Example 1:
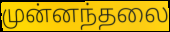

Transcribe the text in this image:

முன்னந்தலை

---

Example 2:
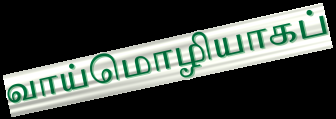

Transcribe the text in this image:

வாய்மொழியாகப்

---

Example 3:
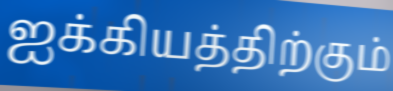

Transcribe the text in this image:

ஐக்கியத்திற்கும்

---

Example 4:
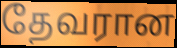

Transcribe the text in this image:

தேவரான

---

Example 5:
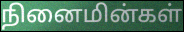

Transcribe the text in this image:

நினைமின்கள்